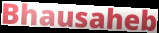
Bhausaheb